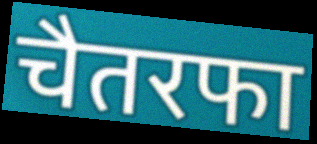
चैतरफा